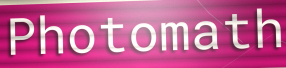
Photomath